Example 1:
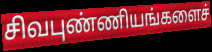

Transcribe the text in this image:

சிவபுண்ணியங்களைச்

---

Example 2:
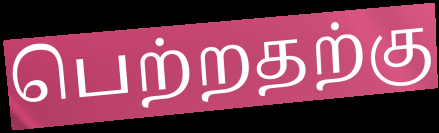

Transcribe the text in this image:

பெற்றதற்கு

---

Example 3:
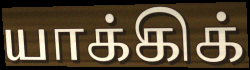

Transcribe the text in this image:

யாக்கிக்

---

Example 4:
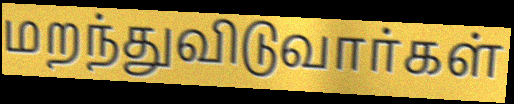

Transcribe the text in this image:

மறந்துவிடுவார்கள்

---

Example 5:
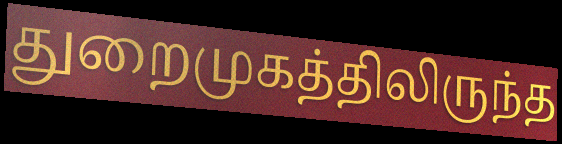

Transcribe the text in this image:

துறைமுகத்திலிருந்த